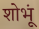
शोभूं